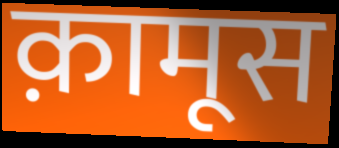
क़ामूस